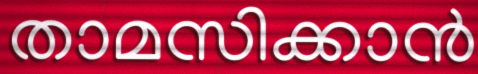
താമസിക്കാൻ